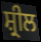
ਸ਼੍ਰੀਲ